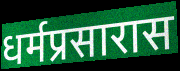
धर्मप्रसारास